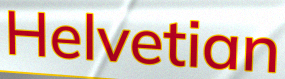
Helvetian